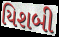
યિશબી